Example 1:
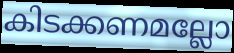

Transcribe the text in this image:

കിടക്കണമല്ലോ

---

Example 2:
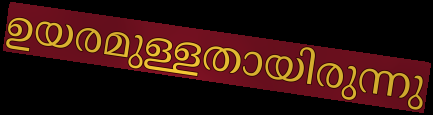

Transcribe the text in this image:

ഉയരമുള്ളതായിരുന്നു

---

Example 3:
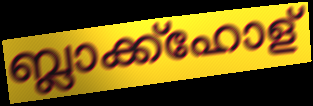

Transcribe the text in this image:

ബ്ലാക്ക്ഹോള്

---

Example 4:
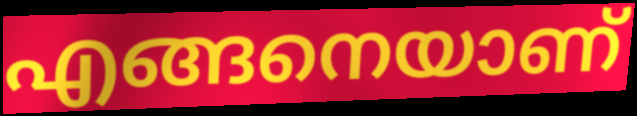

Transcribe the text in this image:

എങ്ങനെയാണ്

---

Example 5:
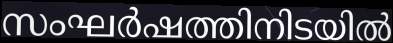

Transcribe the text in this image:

സംഘർഷത്തിനിടയിൽ